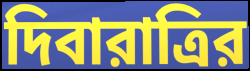
দিবারাত্রির